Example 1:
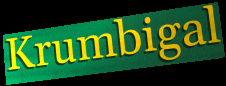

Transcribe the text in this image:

Krumbigal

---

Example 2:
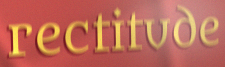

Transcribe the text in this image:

rectitude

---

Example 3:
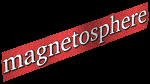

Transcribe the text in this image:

magnetosphere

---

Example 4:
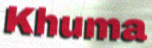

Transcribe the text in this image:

Khuma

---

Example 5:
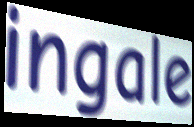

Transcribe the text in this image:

ingale